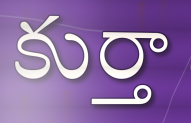
కుర్తా